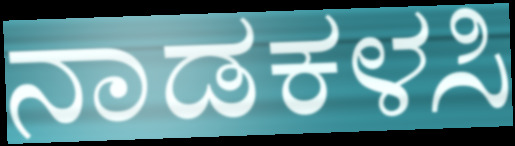
ನಾಡಕಳಸಿ